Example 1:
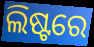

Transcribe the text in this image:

ଲିଷ୍ଟରେ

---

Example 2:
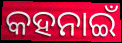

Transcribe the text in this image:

କହନାଇଁ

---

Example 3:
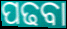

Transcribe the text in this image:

ପଢବା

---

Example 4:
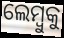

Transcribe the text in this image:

ଲେମ୍ବୁକୁ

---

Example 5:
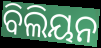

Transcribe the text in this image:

ବିଲିୟନ